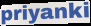
priyanki